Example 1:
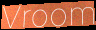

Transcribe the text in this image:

Vroom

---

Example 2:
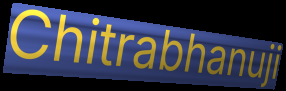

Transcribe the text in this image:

Chitrabhanuji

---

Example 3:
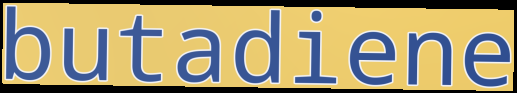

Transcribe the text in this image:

butadiene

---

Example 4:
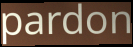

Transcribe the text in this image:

pardon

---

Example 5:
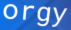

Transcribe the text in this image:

orgy